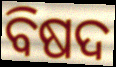
ବିଷଦ